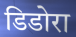
डिडोरा